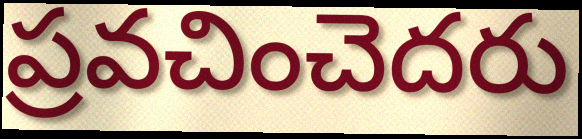
ప్రవచించెదరు